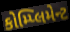
કોમ્પ્લિમેન્ટ